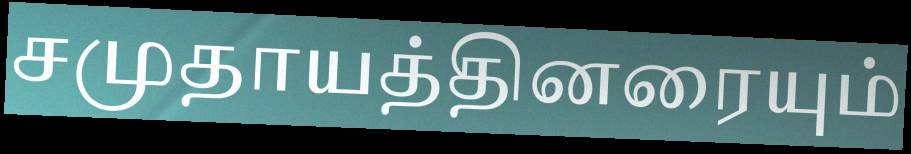
சமுதாயத்தினரையும்